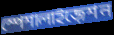
স্পেশালাইজ়েশন